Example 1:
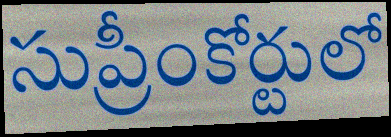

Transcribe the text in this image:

సుప్రీంకోర్టులో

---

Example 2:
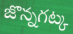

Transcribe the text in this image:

జొన్నగట్క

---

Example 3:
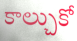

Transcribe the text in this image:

కాల్చుకో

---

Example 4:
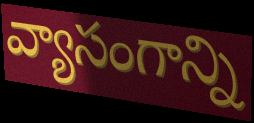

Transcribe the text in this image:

వ్యాసంగాన్ని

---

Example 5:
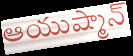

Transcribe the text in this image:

ఆయుష్మాన్